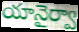
యానైర్వా